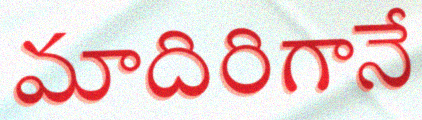
మాదిరిగానే